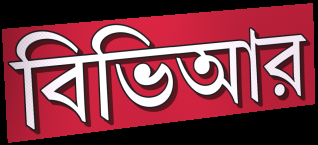
বিভিআর